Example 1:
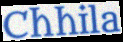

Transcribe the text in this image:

Chhila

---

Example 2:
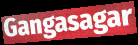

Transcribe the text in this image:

Gangasagar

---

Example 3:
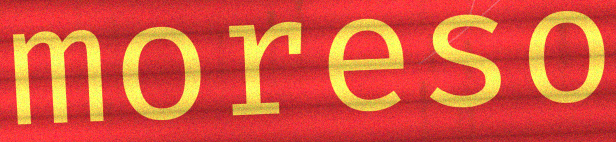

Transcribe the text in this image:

moreso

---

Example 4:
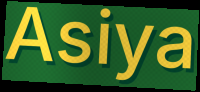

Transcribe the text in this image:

Asiya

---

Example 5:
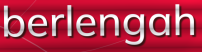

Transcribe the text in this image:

berlengah